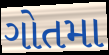
ગોતમા